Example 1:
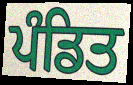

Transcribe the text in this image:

ਪੰਡਿਤ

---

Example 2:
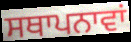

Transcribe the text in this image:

ਸਥਾਪਨਾਵਾਂ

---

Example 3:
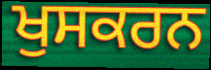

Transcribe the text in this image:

ਖੁਸਕਰਨ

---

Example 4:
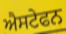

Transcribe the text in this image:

ਐਸਟੇਫਨ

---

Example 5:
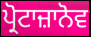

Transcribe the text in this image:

ਪ੍ਰੋਟਾਜ਼ਾਨੋਵ